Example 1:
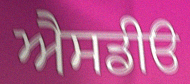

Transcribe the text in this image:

ਐਸਡੀੳ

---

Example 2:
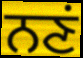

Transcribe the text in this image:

ਨਣਂ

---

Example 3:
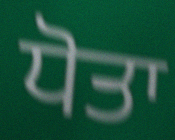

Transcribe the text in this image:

ਧੋਤਾ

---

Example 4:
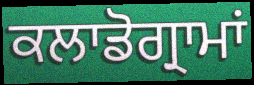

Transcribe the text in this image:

ਕਲਾਡੋਗ੍ਰਾਮਾਂ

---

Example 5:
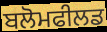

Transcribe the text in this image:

ਬਲੋਮਫੀਲਡ